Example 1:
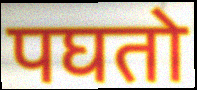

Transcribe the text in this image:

पघतो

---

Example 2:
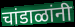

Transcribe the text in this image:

चांडाळांनी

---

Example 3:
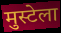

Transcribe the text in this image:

मुस्टेला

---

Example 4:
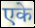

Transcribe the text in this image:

एके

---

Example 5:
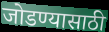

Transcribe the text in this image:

जोडण्यासाठी